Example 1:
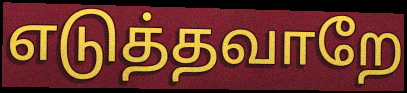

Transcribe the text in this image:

எடுத்தவாறே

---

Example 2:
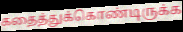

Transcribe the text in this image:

கதைத்துக்கொண்டிருக்க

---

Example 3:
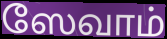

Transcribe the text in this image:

ஸேவாம்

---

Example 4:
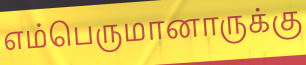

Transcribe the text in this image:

எம்பெருமானாருக்கு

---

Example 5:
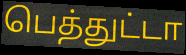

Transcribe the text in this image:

பெத்துட்டா